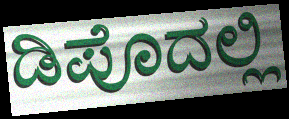
ಡಿಪೊದಲ್ಲಿ